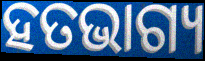
ହତଭାଗ୍ୟ